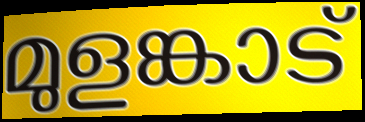
മുളങ്കാട്